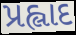
પ્રહ્લાદ